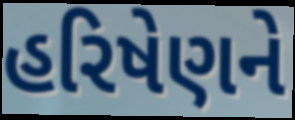
હરિષેણને